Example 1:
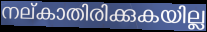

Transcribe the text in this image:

നല്‌കാതിരിക്കുകയില്ല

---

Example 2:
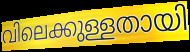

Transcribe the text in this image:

വിലെക്കുള്ളതായി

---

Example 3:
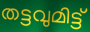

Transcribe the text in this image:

തട്ടവുമിട്ട്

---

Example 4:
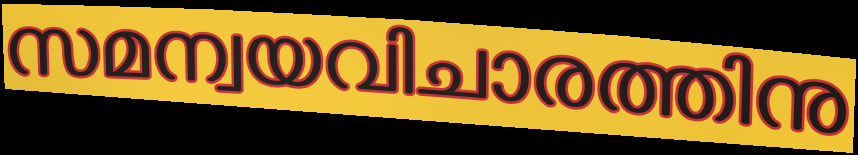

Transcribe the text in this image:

സമന്വയവിചാരത്തിനു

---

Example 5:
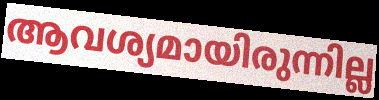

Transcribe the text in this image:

ആവശ്യമായിരുന്നില്ല